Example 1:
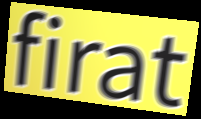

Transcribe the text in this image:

firat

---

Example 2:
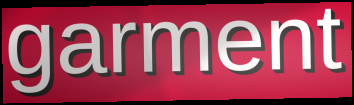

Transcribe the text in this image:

garment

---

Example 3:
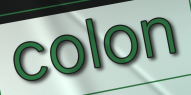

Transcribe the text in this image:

colon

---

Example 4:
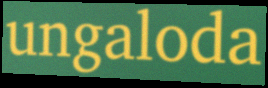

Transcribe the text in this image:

ungaloda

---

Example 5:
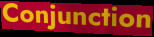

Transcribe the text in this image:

Conjunction